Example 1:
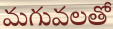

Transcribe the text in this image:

మగువలతో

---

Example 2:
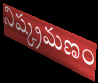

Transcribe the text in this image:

నిష్క్రమణం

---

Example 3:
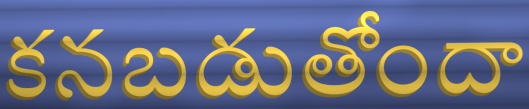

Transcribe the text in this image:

కనబడుతోందా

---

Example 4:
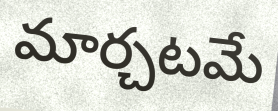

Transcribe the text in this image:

మార్చటమే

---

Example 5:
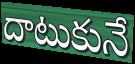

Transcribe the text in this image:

దాటుకునే